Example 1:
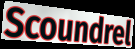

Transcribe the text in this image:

Scoundrel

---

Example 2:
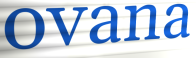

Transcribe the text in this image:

ovana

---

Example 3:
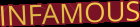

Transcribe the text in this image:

INFAMOUS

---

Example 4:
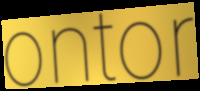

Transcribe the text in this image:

ontor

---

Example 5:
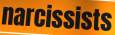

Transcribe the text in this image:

narcissists